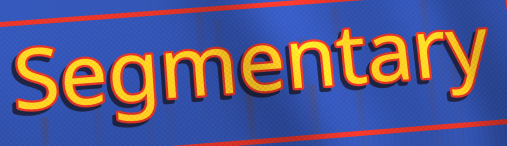
Segmentary